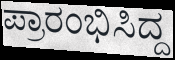
ಪ್ರಾರಂಭಿಸಿದ್ದ